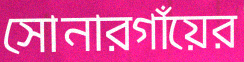
সোনারগাঁয়ের